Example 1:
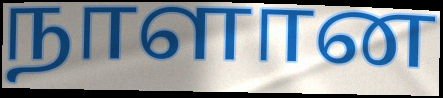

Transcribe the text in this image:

நாளான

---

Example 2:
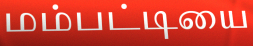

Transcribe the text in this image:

மம்பட்டியை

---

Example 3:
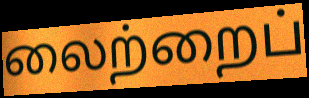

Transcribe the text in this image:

லைற்றைப்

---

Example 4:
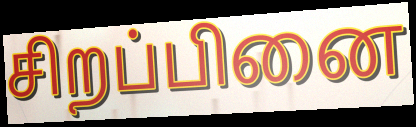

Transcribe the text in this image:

சிறப்பினை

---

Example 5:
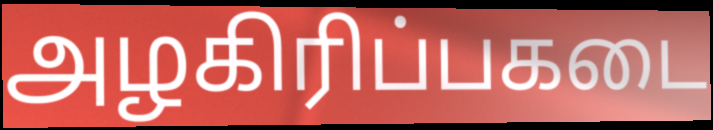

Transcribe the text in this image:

அழகிரிப்பகடை